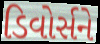
ડિવોર્સને